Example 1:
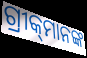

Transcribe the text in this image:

ଗ୍ରୀକ୍‌ମାନଙ୍କ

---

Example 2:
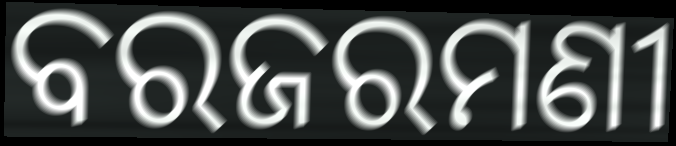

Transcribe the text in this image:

ବରଜରମଣୀ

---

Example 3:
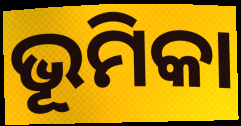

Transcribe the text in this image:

ଭୂମିକା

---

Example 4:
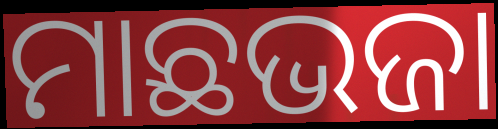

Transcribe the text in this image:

ମାଛଭଜା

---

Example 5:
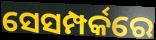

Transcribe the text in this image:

ସେସମ୍ପର୍କରେ